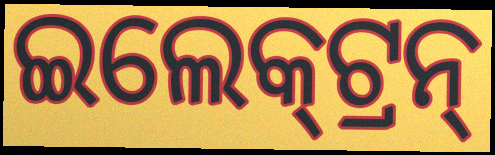
ଇଲେକ୍‌ଟ୍ରନ୍